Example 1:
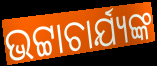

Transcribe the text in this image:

ଭଟ୍ଟାଚାର୍ଯ୍ୟଙ୍କ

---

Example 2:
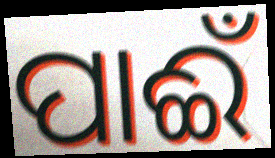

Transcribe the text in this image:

ପାଈଁ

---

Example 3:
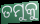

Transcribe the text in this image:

ତମୁକୁ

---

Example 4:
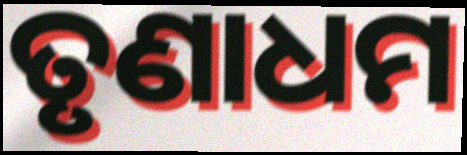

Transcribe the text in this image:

ତୃଣାଧମ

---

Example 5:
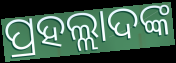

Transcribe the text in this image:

ପ୍ରହଲ୍ଲାଦଙ୍କ